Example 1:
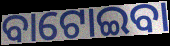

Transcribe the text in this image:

ବାଟୋଇବା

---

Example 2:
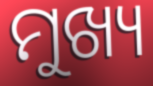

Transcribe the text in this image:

ମୁଖ୍ୟ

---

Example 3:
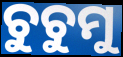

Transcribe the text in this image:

ଚୁଚୁମୁ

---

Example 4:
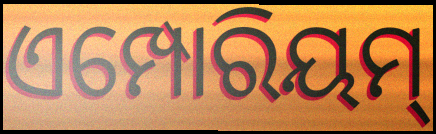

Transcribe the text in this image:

ଏମ୍ପୋରିୟମ୍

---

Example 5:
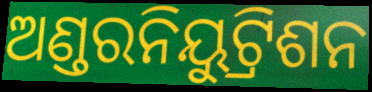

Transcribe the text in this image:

ଅଣ୍ଡରନିୟୁଟ୍ରିଶନ